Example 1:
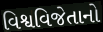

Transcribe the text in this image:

વિશ્વવિજેતાનો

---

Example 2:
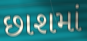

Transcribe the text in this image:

છાશમાં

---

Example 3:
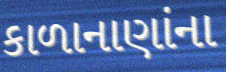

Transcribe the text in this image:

કાળાનાણાંના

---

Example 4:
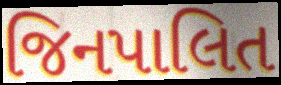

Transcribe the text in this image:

જિનપાલિત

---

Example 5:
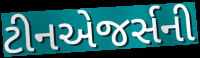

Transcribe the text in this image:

ટીનએજર્સની